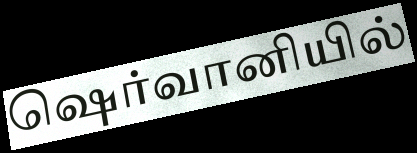
ஷெர்வானியில்